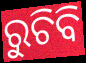
ରୁଚିବି